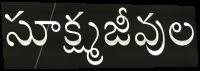
సూక్ష్మజీవుల